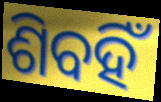
ଶିବହିଁ